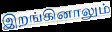
இறங்கினாலும்